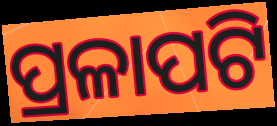
ପ୍ରଳାପଟି